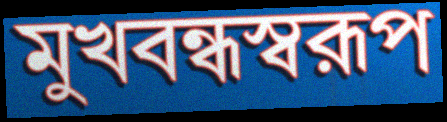
মুখবন্ধস্বরূপ